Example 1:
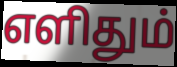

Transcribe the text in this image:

எளிதும்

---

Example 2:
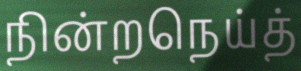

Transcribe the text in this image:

நின்றநெய்த்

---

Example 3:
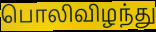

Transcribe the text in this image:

பொலிவிழந்து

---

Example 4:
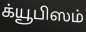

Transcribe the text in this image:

க்யூபிஸம்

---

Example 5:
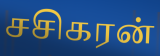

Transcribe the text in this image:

சசிகரன்